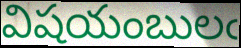
విషయంబులఁ